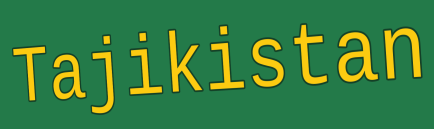
Tajikistan